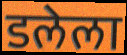
डलेला